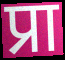
प्रा